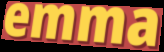
emma